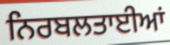
ਨਿਰਬਲਤਾਈਆਂ